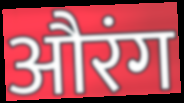
औरंग